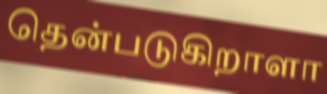
தென்படுகிறாளா